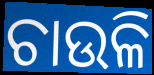
ଚାଉଳି